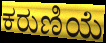
ಕರುಣಿಯೆ